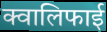
क्वालिफाई